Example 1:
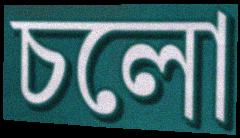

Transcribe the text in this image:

চলো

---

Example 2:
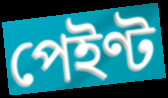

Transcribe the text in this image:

পেইণ্ট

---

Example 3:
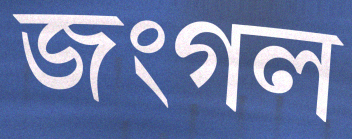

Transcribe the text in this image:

জংগল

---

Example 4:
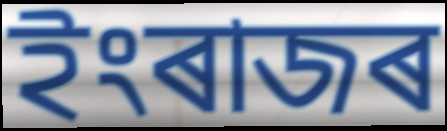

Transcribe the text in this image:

ইংৰাজৰ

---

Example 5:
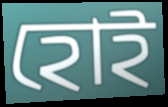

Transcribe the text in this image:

হোই